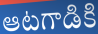
ఆటగాడికి